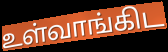
உள்வாங்கிட